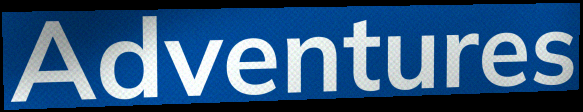
Adventures